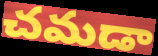
చమడా